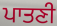
ਪਾਤਣੀ